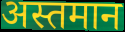
अस्तमान